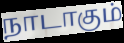
நாடாகும்